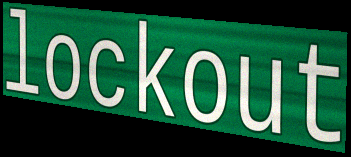
lockout